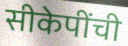
सीकेपींची